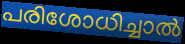
പരിശോധിച്ചാൽ